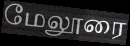
மேலூரை